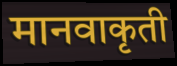
मानवाकृती